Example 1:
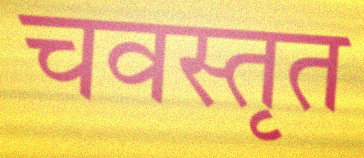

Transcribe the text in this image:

चवस्तृत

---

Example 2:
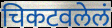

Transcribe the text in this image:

चिकटवलेलं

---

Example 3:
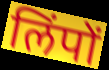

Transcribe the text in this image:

लिंपों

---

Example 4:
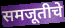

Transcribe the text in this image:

समजूतीचे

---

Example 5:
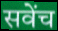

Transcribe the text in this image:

सवेंच